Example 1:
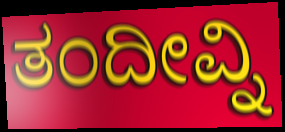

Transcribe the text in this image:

ತಂದೀವ್ನಿ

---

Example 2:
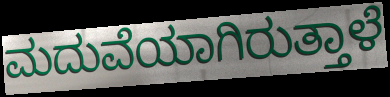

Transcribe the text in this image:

ಮದುವೆಯಾಗಿರುತ್ತಾಳೆ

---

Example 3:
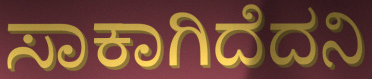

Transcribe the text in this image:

ಸಾಕಾಗಿದೆದನಿ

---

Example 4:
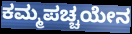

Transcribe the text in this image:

ಕಮ್ಮಪಚ್ಚಯೇನ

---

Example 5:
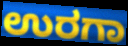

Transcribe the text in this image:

ಉರಗಾ